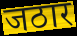
जठार